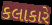
કલાકારે